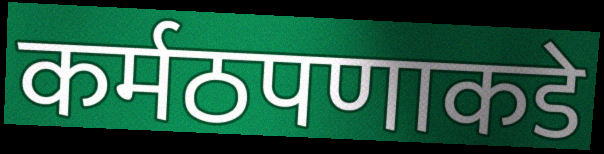
कर्मठपणाकडे